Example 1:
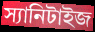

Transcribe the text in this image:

স্যানিটাইজ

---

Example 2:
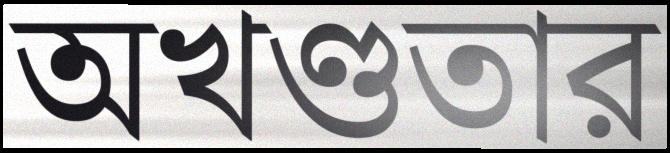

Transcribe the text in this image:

অখণ্ডতার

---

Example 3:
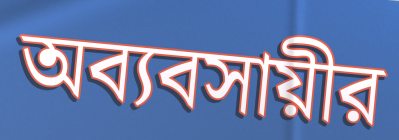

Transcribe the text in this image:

অব্যবসায়ীর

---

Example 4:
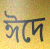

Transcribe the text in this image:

ঈদে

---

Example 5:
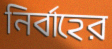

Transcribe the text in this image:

নির্বাহের